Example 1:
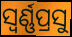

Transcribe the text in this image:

ସ୍ୱର୍ଣ୍ଣପ୍ରସୁ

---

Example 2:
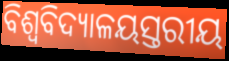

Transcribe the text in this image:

ବିଶ୍ଵବିଦ୍ୟାଳୟସ୍ତରୀୟ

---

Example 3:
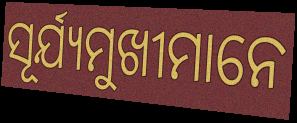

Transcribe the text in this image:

ସୂର୍ଯ୍ୟମୁଖୀମାନେ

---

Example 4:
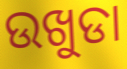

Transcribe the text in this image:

ଉଖୁଡା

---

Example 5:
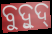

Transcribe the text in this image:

ବୁଦ୍ବୁଦ୍